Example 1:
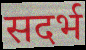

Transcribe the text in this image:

सदर्भ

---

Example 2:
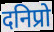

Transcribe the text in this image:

दनिप्रो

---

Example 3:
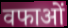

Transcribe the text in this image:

वफाओं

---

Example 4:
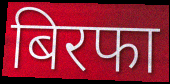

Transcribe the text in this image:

बिरफा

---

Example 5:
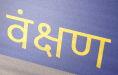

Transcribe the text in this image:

वंक्षण